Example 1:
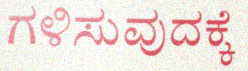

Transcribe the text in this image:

ಗಳಿಸುವುದಕ್ಕೆ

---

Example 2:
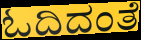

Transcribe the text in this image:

ಓದಿದಂತೆ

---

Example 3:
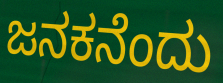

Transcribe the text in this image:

ಜನಕನೆಂದು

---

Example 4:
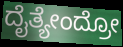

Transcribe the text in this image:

ದೈತ್ಯೇಂದ್ರೋ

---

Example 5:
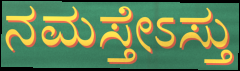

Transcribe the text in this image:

ನಮಸ್ತೇಽಸ್ತು